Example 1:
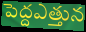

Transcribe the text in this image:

పెద్దఎత్తున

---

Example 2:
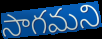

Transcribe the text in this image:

సాగమని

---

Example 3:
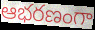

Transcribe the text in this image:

ఆభరణంగా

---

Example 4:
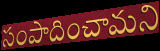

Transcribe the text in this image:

సంపాదించామని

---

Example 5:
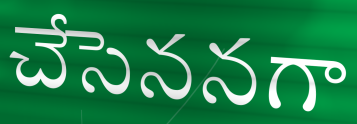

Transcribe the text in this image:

చేసెననగా